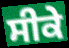
ਸੀਕੇ